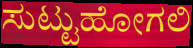
ಸುಟ್ಟುಹೋಗಲಿ